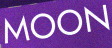
MOON